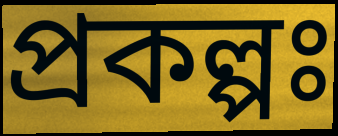
প্ৰকল্পঃ